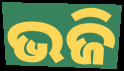
ଭଜି